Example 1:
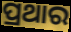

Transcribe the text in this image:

ପ୍ରଥାର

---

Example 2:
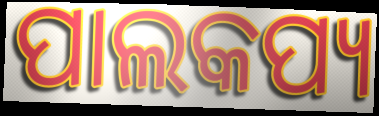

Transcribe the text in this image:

ପାଲକପ୍ୟ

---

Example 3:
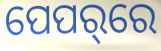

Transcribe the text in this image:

ପେପର୍‌ରେ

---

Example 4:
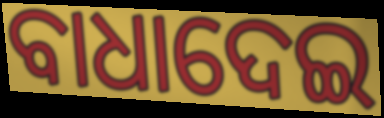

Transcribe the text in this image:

ବାଧାଦେଇ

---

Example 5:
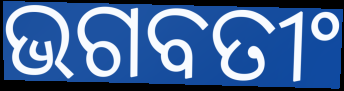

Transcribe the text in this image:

ଭଗବତୀଂ